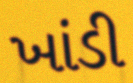
ખાંડી